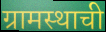
ग्रामस्थाची